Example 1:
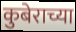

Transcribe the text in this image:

कुबेराच्या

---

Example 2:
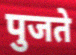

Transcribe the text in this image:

पुजते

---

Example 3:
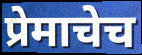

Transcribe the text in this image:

प्रेमाचेच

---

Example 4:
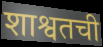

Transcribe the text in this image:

शाश्वतची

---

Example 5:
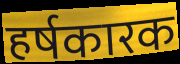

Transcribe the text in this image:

हर्षकारक